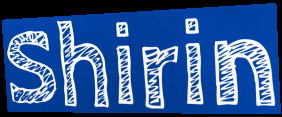
Shirin